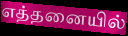
எத்தனையில்